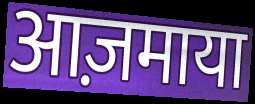
आज़माया